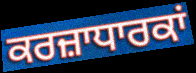
ਕਰਜ਼ਾਧਾਰਕਾਂ